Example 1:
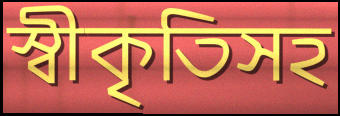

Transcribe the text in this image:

স্বীকৃতিসহ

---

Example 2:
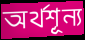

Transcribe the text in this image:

অর্থশূন্য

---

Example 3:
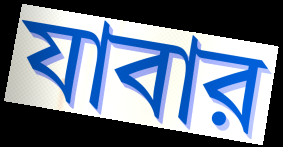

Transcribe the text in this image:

যাবার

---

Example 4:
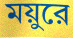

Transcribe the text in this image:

ময়ুরে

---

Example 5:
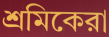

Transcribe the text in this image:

শ্রমিকেরা